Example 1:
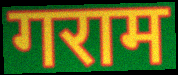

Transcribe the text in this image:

गराम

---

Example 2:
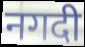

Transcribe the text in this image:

नगदी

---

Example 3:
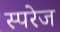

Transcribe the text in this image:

स्परेज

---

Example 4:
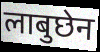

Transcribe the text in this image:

लाबुछेन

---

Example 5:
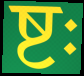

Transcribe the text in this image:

ष्टः